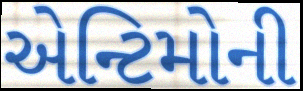
એન્ટિમોની